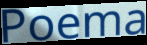
Poema